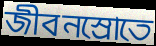
জীবনস্রোতে